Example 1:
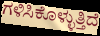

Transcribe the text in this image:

ಗಳಿಸಿಕೊಳ್ಳುತ್ತಿದೆ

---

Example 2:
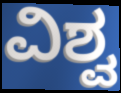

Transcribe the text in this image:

ವಿಶ್ವ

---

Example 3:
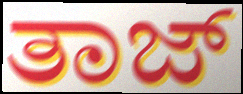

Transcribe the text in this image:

ತಾಜ್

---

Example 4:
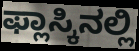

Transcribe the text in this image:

ಫ್ಲಾಸ್ಕಿನಲ್ಲಿ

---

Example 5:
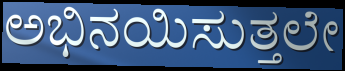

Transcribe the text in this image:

ಅಭಿನಯಿಸುತ್ತಲೇ